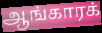
ஆங்காரக்